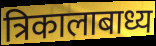
त्रिकालाबाध्य